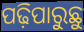
ପଢ଼ିପାରୁଛୁ